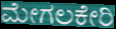
ಮೇಗಲಕೇರಿ